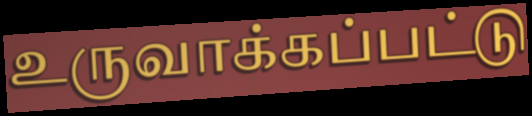
உருவாக்கப்பட்டு